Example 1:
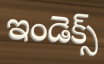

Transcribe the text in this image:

ఇండెక్స్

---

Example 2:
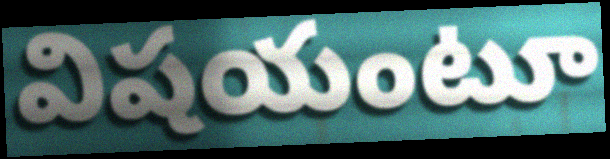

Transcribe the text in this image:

విషయంటూ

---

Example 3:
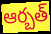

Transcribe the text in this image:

ఆర్బత్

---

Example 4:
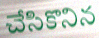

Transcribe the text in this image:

చేసికొనిన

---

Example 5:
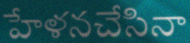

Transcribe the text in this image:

హేళనచేసినా